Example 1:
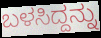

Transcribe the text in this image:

ಬಳಸಿದ್ದನ್ನು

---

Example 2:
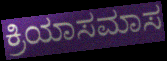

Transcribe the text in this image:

ಕ್ರಿಯಾಸಮಾಸ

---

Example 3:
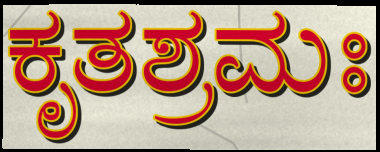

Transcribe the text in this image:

ಕೃತಶ್ರಮಃ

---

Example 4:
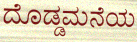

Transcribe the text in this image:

ದೊಡ್ಡಮನೆಯ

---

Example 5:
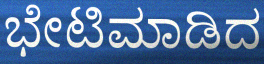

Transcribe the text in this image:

ಭೇಟಿಮಾಡಿದ